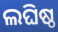
ଲଘିଷ୍ଠ